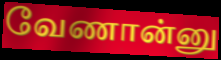
வேணான்னு